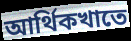
আর্থিকখাতে